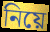
নিয়ে